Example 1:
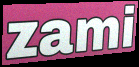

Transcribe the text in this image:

zami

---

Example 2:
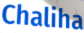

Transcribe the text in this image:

Chaliha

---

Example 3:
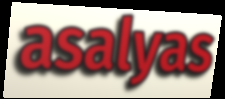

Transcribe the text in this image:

asalyas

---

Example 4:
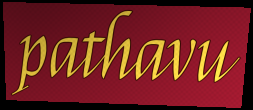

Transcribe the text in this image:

pathavu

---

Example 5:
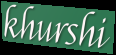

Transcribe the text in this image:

khurshi